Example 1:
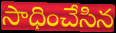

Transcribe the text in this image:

సాధించేసిన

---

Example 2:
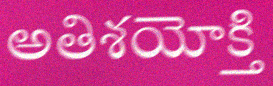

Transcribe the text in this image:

అతిశయోక్తి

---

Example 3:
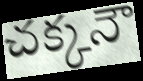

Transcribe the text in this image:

చక్కనౌ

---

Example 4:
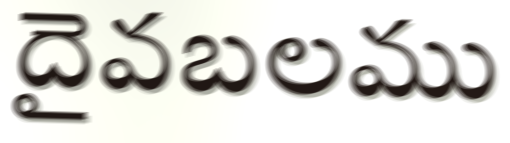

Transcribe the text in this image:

దైవబలము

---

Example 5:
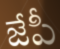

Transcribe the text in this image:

జేపీ